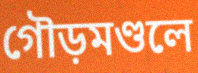
গৌড়মণ্ডলে